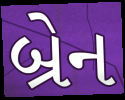
બ્રેન